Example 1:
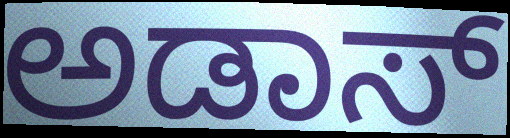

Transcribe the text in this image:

ಅಡಾಸ್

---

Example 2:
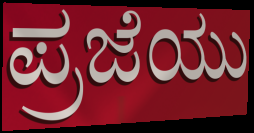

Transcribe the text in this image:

ಪ್ರಜೆಯು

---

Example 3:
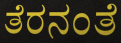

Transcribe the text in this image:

ತೆರನಂತೆ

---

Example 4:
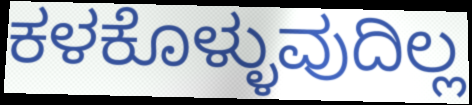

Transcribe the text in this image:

ಕಳಕೊಳ್ಳುವುದಿಲ್ಲ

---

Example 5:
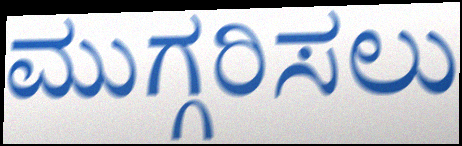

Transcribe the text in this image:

ಮುಗ್ಗರಿಸಲು